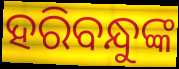
ହରିବନ୍ଧୁଙ୍କ